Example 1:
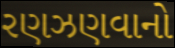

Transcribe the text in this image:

રણઝણવાનો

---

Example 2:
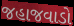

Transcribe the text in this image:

જહાજવાડો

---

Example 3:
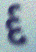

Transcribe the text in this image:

ર્દ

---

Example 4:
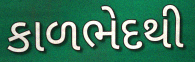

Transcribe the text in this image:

કાળભેદથી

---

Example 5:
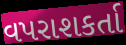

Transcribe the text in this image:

વપરાશકર્તા